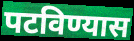
पटविण्यास